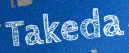
Takeda